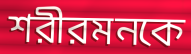
শরীরমনকে